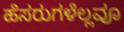
ಹೆಸರುಗಳೆಲ್ಲವೂ